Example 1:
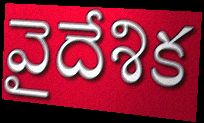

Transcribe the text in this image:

వైదేశిక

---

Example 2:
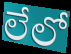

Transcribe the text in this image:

లేలో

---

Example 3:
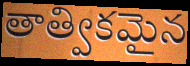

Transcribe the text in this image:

తాత్వికమైన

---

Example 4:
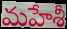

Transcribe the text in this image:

మహేశీ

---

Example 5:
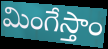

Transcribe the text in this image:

మింగేస్తాం